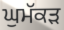
ਘੁਮੱਕੜ